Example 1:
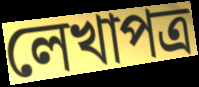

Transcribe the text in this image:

লেখাপত্র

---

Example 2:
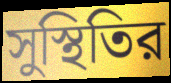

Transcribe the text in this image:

সুস্থিতির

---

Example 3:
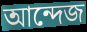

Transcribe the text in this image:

আন্দেজ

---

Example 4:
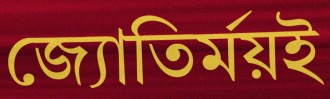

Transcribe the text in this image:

জ্যোতির্ময়ই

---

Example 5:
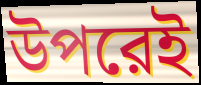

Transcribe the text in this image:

উপরেই